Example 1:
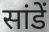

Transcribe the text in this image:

सांडें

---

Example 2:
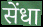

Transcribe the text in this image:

सेंधा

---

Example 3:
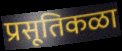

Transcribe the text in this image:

प्रसूतिकळा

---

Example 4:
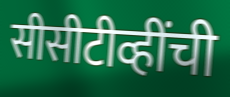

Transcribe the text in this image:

सीसीटीव्हींची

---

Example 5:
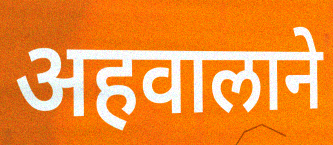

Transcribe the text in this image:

अहवालाने